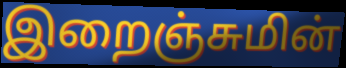
இறைஞ்சுமின்